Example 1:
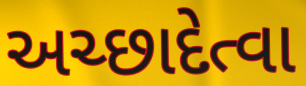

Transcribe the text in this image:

અચ્છાદેત્વા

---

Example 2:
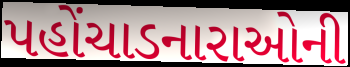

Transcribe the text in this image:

પહોંચાડનારાઓની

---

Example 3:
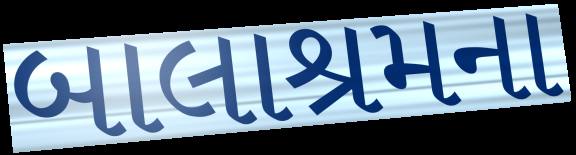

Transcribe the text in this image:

બાલાશ્રમના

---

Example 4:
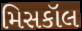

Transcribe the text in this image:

મિસકૉલ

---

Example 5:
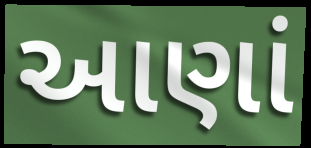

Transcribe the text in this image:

આણાં